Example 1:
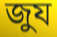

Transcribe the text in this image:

জুয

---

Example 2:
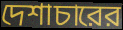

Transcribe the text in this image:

দেশাচারের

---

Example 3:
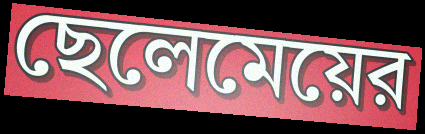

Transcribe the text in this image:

ছেলেমেয়ের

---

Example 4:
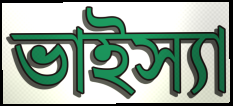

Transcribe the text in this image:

ভাইস্যা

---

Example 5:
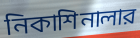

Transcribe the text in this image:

নিকাশিনালার